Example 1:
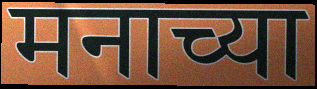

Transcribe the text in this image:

मनाच्या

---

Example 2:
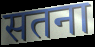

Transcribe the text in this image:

सतना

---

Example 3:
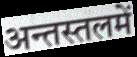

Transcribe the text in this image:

अन्तस्तलमें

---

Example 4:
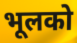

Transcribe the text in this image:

भूलको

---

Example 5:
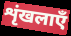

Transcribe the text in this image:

शृंखलाएँ